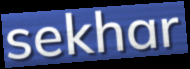
sekhar